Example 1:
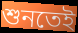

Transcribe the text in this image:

শুনতেই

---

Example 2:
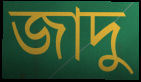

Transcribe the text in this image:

জাদু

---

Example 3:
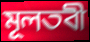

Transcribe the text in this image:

মূলতবী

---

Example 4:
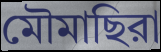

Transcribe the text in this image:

মৌমাছিরা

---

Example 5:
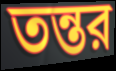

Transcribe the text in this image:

তন্তর